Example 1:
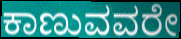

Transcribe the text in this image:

ಕಾಣುವವರೇ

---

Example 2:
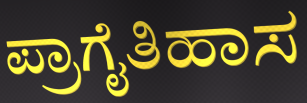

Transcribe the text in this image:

ಪ್ರಾಗೈತಿಹಾಸ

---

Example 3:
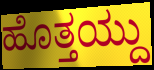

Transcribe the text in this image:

ಹೊತ್ತಯ್ದು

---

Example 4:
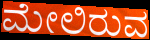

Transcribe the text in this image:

ಮೇಲಿರುವ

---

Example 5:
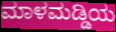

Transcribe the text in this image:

ಮಾಳಮಡ್ಡಿಯ